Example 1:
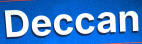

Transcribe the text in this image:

Deccan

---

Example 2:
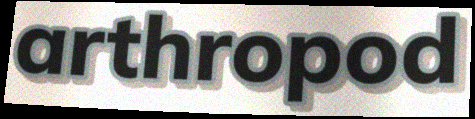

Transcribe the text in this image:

arthropod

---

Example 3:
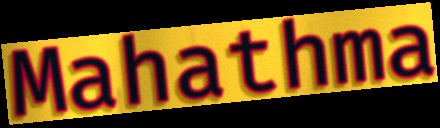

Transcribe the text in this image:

Mahathma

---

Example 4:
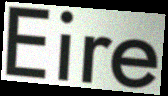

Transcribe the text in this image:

Eire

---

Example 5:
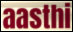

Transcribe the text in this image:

aasthi